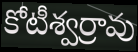
కోటీశ్వర్రావు